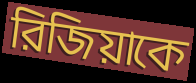
রিজিয়াকে